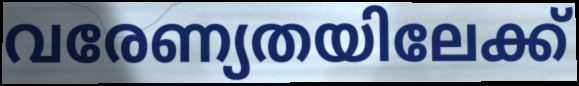
വരേണ്യതയിലേക്ക്